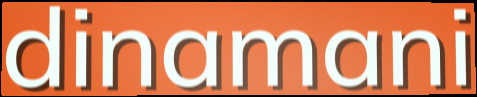
dinamani